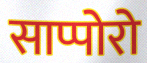
साप्पोरो